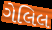
ગેલિલ